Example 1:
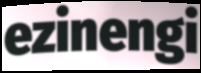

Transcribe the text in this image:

ezinengi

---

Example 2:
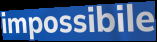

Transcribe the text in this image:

impossibile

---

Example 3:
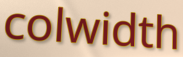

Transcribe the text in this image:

colwidth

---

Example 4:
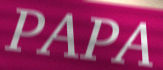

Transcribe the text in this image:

PAPA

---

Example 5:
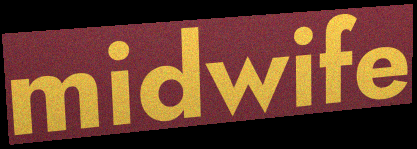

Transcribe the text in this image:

midwife